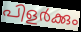
പിളർക്കും